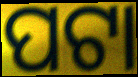
ପଟା